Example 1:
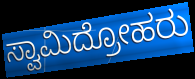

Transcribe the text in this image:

ಸ್ವಾಮಿದ್ರೋಹರು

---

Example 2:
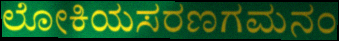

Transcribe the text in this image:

ಲೋಕಿಯಸರಣಗಮನಂ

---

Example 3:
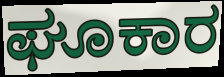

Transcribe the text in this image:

ಘೂಕಾರ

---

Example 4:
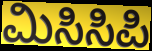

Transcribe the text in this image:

ಮಿಸಿಸಿಪಿ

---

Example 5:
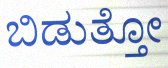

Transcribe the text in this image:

ಬಿಡುತ್ತೋ